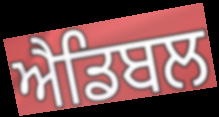
ਐਡਿਬਲ